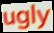
ugly